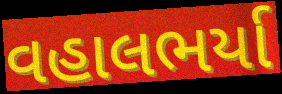
વહાલભર્યા